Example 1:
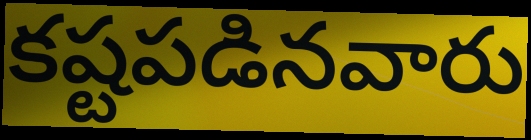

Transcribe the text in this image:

కష్టపడినవారు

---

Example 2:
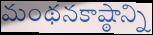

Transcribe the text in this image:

మంథనకాష్ఠాన్ని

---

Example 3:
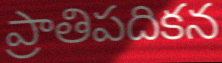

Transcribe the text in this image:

ప్రాతిపదికన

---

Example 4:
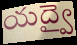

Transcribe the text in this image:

యద్వై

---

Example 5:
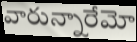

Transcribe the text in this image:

వారున్నారేమో